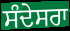
ਸੰਦੇਸਰਾ